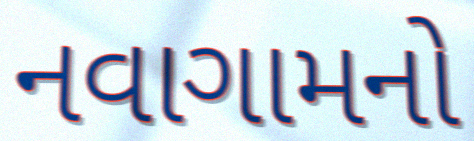
નવાગામનો